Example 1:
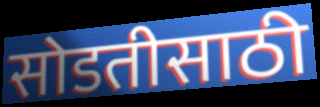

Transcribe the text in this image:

सोडतीसाठी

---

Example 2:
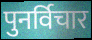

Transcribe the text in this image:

पुनर्विचार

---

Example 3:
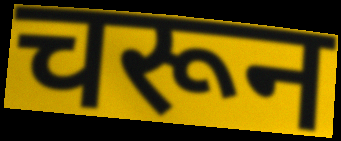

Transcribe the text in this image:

चरून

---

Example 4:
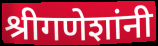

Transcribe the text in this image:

श्रीगणेशांनी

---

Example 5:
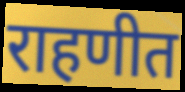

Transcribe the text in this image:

राहणीत